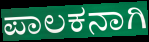
ಪಾಲಕನಾಗಿ